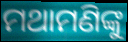
ମଥାମଣିଙ୍କୁ